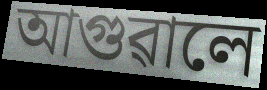
আগুৱালে